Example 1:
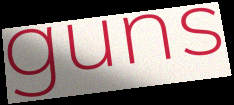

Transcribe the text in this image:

guns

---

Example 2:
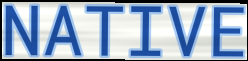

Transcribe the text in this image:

NATIVE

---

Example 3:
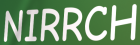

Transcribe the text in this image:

NIRRCH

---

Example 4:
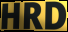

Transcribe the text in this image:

HRD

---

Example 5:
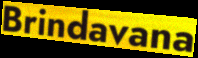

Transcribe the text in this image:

Brindavana